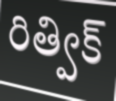
రిత్విక్